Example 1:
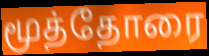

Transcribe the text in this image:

மூத்தோரை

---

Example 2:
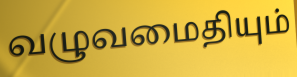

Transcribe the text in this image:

வழுவமைதியும்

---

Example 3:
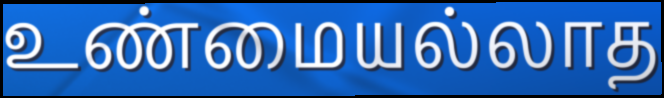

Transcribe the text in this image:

உண்மையல்லாத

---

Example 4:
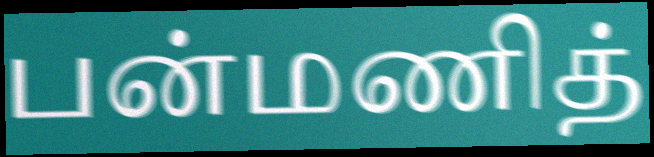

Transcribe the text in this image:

பன்மணித்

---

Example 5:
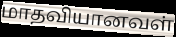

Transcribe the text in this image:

மாதவியானவள்